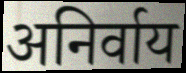
अनिर्वाय